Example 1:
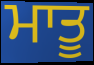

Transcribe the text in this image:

ਮਾਤੂ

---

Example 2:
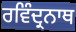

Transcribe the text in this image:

ਰਵਿੰਦ੍ਰਨਾਥ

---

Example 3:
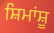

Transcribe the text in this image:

ਸ਼ਿਮਾਂਸ਼ੂ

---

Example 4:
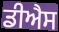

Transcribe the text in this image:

ਡੀਐਸ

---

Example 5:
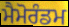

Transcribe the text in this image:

ਮੈਮੋਰੰਡਮ